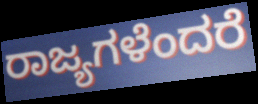
ರಾಜ್ಯಗಳೆಂದರೆ